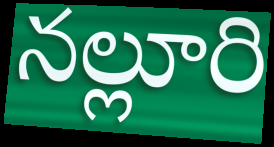
నల్లూరి